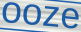
ooze